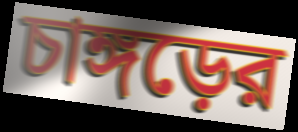
চাঙ্গড়ের